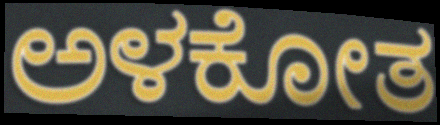
ಅಳಕೋತ